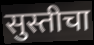
सुस्तीचा